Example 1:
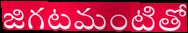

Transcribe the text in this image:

జిగటమంటితో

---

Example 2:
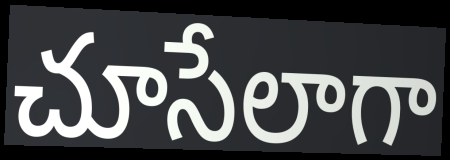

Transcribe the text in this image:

చూసేలాగా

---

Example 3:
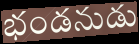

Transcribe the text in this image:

భండనుడు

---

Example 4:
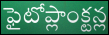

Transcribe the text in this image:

ఫైటోప్లాంక్టన్ల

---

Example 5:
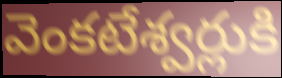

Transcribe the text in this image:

వెంకటేశ్వర్లుకి